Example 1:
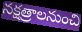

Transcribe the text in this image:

నక్షత్రాలనుంచి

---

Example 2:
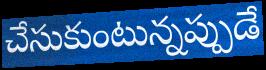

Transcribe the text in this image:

చేసుకుంటున్నప్పుడే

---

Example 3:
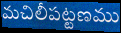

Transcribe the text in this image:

మచిలీపట్టణము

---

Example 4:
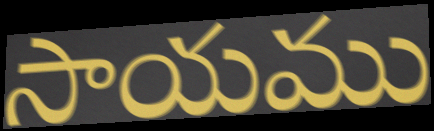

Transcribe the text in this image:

సాయము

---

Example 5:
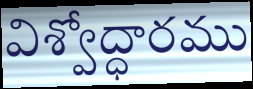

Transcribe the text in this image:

విశ్వోద్ధారము